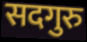
सदगुरु